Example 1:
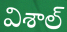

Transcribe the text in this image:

విశాల్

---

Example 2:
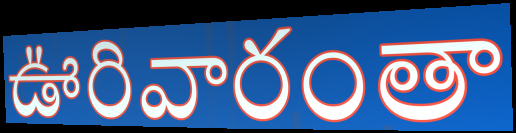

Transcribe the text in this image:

ఊరివారంతా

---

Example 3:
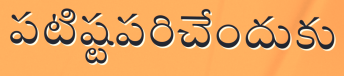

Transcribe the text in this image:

పటిష్టపరిచేందుకు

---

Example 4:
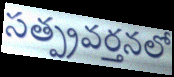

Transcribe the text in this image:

సత్ప్రవర్తనలో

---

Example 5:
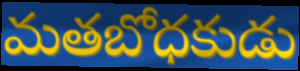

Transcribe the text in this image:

మతబోధకుడు